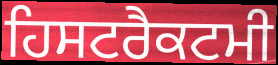
ਹਿਸਟਰੈਕਟਮੀ